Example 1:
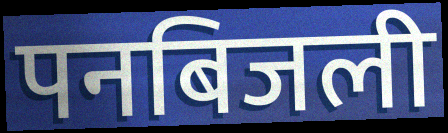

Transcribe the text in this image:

पनबिजली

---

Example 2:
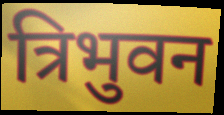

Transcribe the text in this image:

त्रिभुवन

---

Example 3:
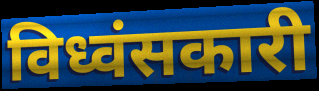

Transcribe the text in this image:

विध्वंसकारी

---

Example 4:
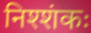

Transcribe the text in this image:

निश्शंकः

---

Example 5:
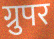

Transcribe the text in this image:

ग्रुपर